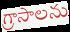
గ్రాసాలను